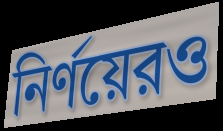
নির্ণয়েরও